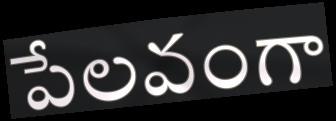
పేలవంగా